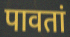
पावतां